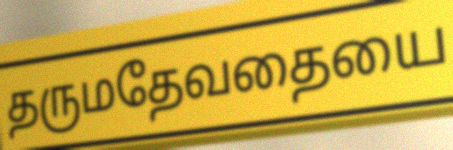
தருமதேவதையை